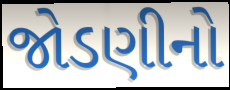
જોડણીનો